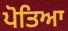
ਪੋਤਿਆ